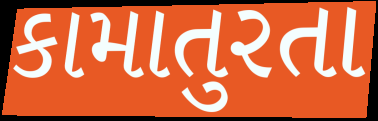
કામાતુરતા